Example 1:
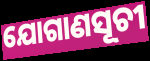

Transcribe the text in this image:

ଯୋଗାଣସୂଚୀ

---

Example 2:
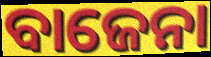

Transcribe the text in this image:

ବାଜେନା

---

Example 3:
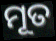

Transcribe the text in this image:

ମୂତ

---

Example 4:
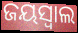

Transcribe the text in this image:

ଜୟସ୍ୱାଲ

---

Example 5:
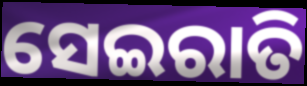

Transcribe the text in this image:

ସେଇରାତି